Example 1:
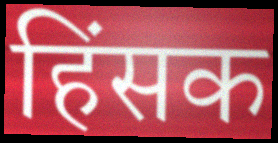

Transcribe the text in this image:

हिंसक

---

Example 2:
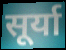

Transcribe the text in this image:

सूर्या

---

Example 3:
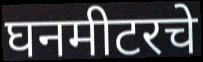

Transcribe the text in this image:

घनमीटरचे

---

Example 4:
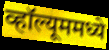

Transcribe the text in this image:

व्हॉल्यूममध्ये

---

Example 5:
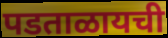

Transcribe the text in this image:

पडताळायची